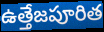
ఉత్తేజపూరిత